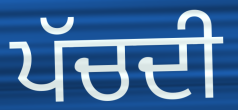
ਪੱਚਦੀ